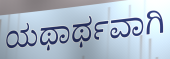
ಯಥಾರ್ಥವಾಗಿ